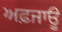
ਅਫ਼ਜਾਊ